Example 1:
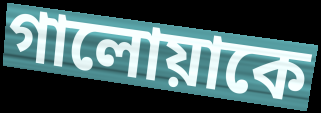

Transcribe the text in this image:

গালোয়াকে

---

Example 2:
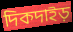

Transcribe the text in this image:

দিকদাইড়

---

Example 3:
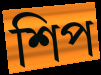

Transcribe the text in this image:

শিপ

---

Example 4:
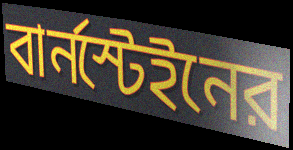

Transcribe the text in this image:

বার্নস্টেইনের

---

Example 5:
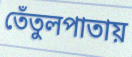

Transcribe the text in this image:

তেঁতুলপাতায়